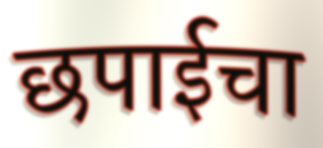
छपाईचा